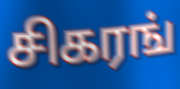
சிகரங்